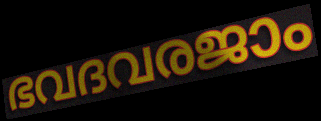
ഭവദവരജാം